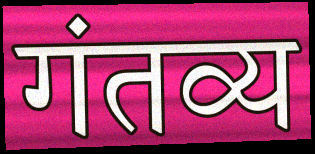
गंतव्य